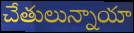
చేతులున్నాయా